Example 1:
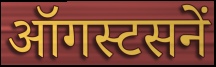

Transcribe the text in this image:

ऑगस्टसनें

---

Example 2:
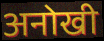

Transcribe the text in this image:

अनोखी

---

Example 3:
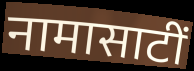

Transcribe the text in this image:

नामासाटीं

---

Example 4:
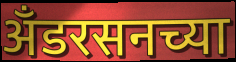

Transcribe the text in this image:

अँडरसनच्या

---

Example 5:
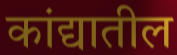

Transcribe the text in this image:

कांद्यातील